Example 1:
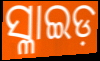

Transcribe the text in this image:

ସ୍ଳାଇଡ଼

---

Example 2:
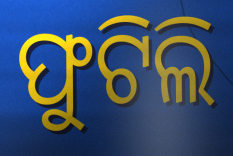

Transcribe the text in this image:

ଫୁଟିଲି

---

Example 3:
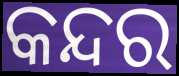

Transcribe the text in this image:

କନ୍ଦର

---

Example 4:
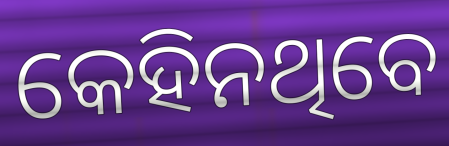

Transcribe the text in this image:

କେହିନଥିବେ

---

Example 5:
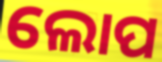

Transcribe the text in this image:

ଲୋପ